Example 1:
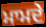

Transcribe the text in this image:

ਮਾਮਦੇ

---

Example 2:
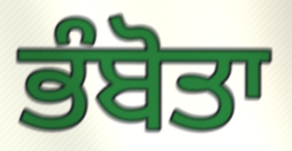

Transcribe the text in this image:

ਭੰਬੋਤਾ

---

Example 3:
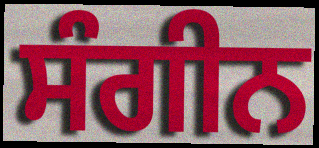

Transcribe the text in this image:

ਸੰਗੀਨ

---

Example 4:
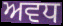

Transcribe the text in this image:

ਅਵਧ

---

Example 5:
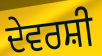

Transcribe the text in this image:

ਦੇਵਰਸ਼ੀ